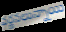
వర్ణనలున్నాయి